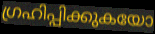
ഗ്രഹിപ്പിക്കുകയോ